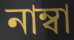
নাম্বা